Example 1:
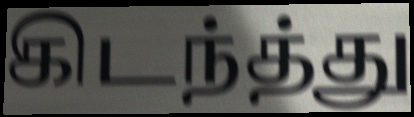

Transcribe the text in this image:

கிடந்த்து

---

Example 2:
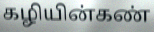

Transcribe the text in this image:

கழியின்கண்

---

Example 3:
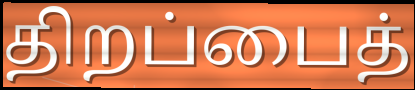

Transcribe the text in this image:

திறப்பைத்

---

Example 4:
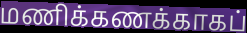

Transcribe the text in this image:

மணிக்கணக்காகப்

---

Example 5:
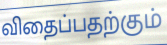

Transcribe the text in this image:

விதைப்பதற்கும்